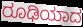
ರೂಢಿಯಾದ